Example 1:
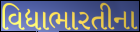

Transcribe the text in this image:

વિદ્યાભારતીના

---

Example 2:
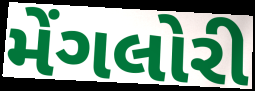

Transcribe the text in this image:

મેંગલોરી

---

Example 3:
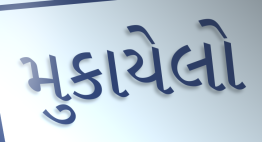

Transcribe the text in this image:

મુકાયેલો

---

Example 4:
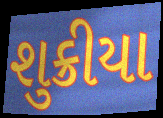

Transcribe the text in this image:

શુક્રીયા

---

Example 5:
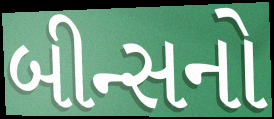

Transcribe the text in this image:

બીન્સનો